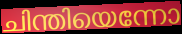
ചിന്തിയെന്നോ